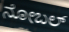
ನೋಬಲ್